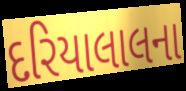
દરિયાલાલના